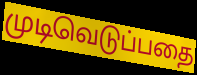
முடிவெடுப்பதை